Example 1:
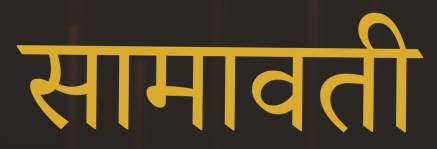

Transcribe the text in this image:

सामावती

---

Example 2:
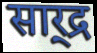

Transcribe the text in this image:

सार्द्र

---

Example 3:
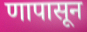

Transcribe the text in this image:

णापासून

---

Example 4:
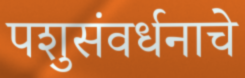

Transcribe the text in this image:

पशुसंवर्धनाचे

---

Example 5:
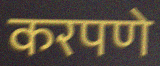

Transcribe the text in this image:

करपणे